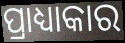
ପ୍ରାଧ୍ୟାକାର